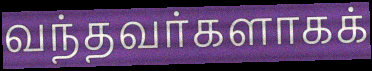
வந்தவர்களாகக்